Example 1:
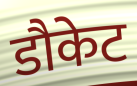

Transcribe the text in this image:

डौकेट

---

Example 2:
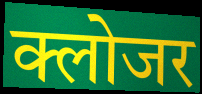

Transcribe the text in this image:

क्लोजर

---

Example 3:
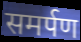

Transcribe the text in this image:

समर्पण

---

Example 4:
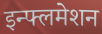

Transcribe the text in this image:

इन्फ्लमेशन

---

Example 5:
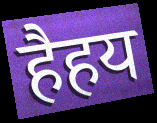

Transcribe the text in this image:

हैहय